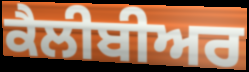
ਕੈਲੀਬੀਅਰ